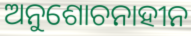
ଅନୁଶୋଚନାହୀନ